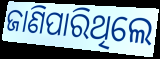
ଜାଣିପାରିଥିଲେ